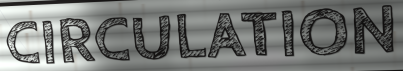
CIRCULATION